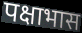
पक्षाभास